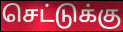
செட்டுக்கு